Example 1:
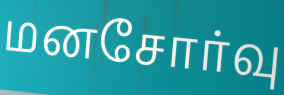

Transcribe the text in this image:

மனசோர்வு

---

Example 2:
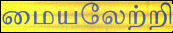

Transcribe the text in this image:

மையலேற்றி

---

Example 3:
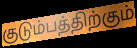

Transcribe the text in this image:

குடும்பத்திற்கும்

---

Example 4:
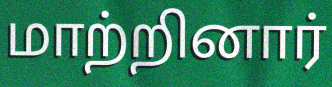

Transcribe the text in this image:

மாற்றினார்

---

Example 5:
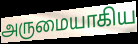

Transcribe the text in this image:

அருமையாகிய